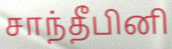
சாந்தீபினி